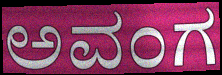
ಅವಂಗ